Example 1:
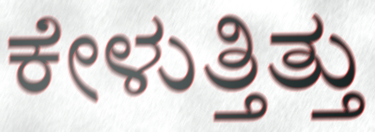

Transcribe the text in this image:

ಕೇಳುತ್ತಿತ್ತು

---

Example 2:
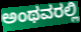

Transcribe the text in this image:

ಅಂಥವರಲ್ಲಿ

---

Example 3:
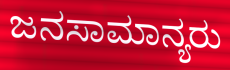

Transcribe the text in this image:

ಜನಸಾಮಾನ್ಯರು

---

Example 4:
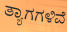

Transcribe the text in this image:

ತ್ಯಾಗಗಳಿವೆ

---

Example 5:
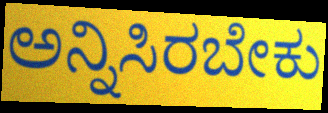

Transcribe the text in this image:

ಅನ್ನಿಸಿರಬೇಕು